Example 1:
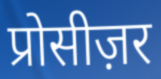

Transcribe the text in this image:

प्रोसीज़र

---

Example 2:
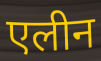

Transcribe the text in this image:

एलीन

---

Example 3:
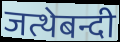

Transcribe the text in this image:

जत्थेबन्दी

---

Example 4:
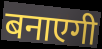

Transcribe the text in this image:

बनाएगी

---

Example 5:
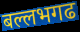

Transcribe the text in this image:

बल्लभगढ